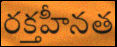
రక్తహీనత